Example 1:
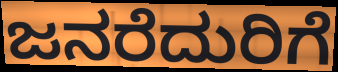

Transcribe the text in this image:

ಜನರೆದುರಿಗೆ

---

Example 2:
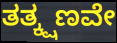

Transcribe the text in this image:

ತತ್ಕ್ಷಣವೇ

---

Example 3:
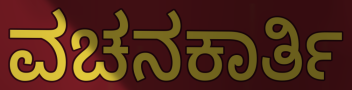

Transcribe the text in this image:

ವಚನಕಾರ್ತಿ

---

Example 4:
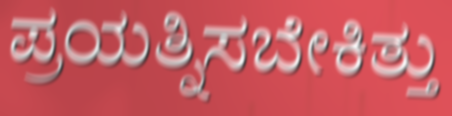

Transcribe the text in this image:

ಪ್ರಯತ್ನಿಸಬೇಕಿತ್ತು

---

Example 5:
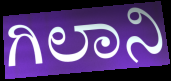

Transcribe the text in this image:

ಗಿಲಾನಿ